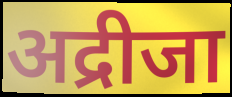
अद्रीजा